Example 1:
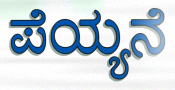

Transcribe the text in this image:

ಪೆಯ್ಯನೆ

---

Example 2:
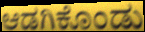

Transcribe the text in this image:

ಆಡಗಿಕೊಂಡು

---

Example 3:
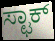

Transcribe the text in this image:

ಸ್ಟಾಕ್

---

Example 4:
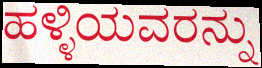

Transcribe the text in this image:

ಹಳ್ಳಿಯವರನ್ನು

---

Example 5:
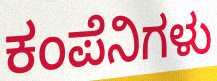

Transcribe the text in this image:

ಕಂಪೆನಿಗಳು